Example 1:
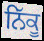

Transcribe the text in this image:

ਨਿੱਕੂ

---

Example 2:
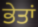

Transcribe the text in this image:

ਭੇਤਾਂ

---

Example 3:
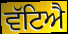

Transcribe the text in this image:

ਵੱਟਿਐ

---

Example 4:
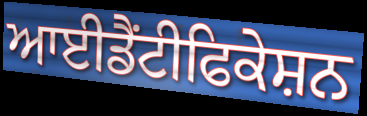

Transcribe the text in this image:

ਆਈਡੈਂਟੀਫਿਕੇਸ਼ਨ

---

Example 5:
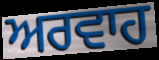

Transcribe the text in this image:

ਅਰਵਾਹ